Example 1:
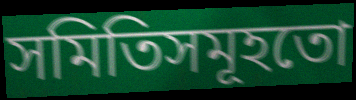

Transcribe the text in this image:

সমিতিসমূহতো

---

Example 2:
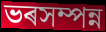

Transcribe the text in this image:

ভৰসম্পন্ন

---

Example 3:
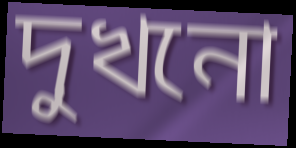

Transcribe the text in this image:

দুখনো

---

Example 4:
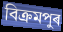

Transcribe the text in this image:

বিক্ৰমপুৰ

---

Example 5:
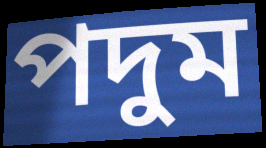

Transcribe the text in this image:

পদুম